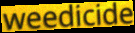
weedicide